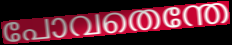
പോവതെന്തേ